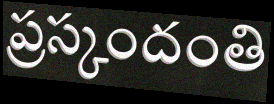
ప్రస్కందంతి